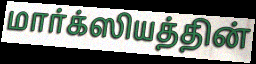
மார்க்ஸியத்தின்